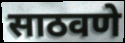
साठवणे